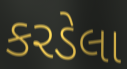
કરડેલા